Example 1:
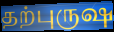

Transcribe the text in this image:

தற்புருஷ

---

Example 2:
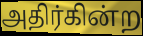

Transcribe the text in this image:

அதிர்கின்ற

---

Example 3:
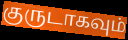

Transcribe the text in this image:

குருடாகவும்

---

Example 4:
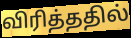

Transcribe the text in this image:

விரித்ததில்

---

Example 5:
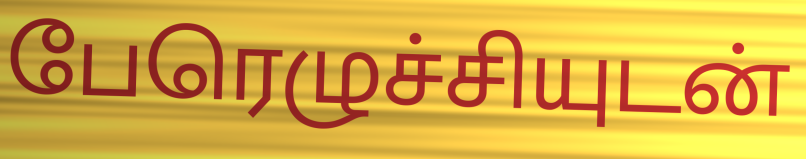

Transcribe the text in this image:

பேரெழுச்சியுடன்